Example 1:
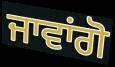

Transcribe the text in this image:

ਜਾਵਾਂਗੋ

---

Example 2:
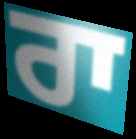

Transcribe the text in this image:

ਰਾ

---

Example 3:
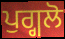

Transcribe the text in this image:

ਪੁਗ੍ਗਲੋ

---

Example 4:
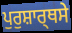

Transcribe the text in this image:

ਪੁਰੁਸ਼ਾਰ੍ਥਸੇ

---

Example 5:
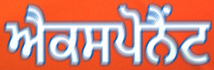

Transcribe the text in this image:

ਐਕਸਪੋਨੈਂਟ